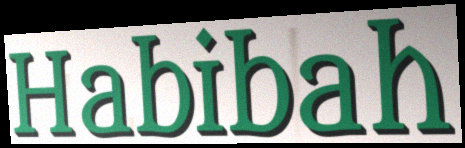
Habibah